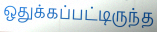
ஒதுக்கப்பட்டிருந்த